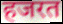
हजरत